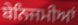
ਬੇਨਿਜਮੀਆਂ